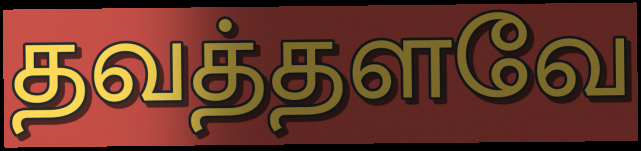
தவத்தளவே